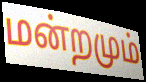
மன்றமும்